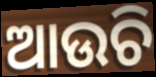
ଆଉଚି